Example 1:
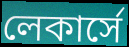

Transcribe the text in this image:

লেকার্সে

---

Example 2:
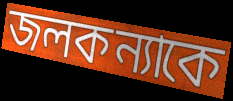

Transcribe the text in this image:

জলকন্যাকে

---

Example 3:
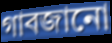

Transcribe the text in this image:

গাবজানো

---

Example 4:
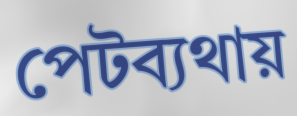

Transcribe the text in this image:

পেটব্যথায়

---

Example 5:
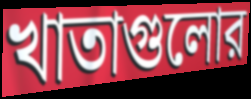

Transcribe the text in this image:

খাতাগুলোর